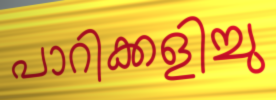
പാറിക്കളിച്ചു